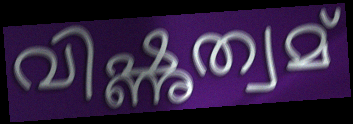
വിഷ്ണുത്വമ്